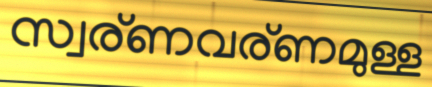
സ്വര്ണവര്ണമുള്ള